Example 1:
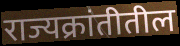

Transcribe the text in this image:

राज्यक्रांतीतील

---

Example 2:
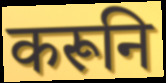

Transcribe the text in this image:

करूनि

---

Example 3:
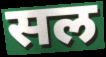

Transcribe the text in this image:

सल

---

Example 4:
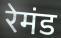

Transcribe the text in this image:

रेमंड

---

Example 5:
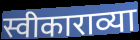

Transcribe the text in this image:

स्वीकाराव्या